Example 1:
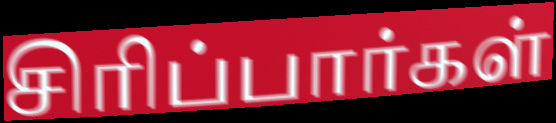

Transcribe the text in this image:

சிரிப்பார்கள்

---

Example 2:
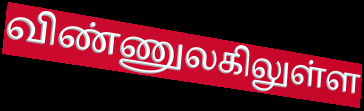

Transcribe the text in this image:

விண்ணுலகிலுள்ள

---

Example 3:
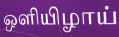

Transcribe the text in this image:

ஒளியிழாய்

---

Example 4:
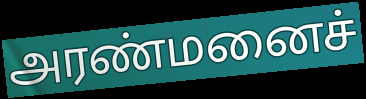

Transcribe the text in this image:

அரண்மனைச்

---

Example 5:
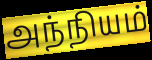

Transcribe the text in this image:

அந்நியம்